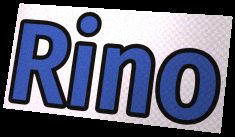
Rino